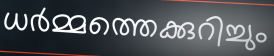
ധർമ്മത്തെക്കുറിച്ചും